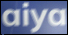
aiya